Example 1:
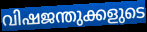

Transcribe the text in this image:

വിഷജന്തുക്കളുടെ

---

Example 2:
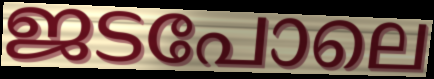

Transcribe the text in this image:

ജടപോലെ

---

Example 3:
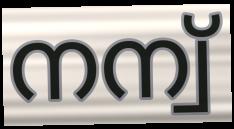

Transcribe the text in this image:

നന്വ്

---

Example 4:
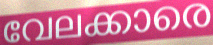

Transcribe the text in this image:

വേലക്കാരെ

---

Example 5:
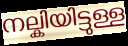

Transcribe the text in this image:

നല്കിയിട്ടുള്ള